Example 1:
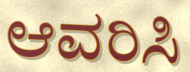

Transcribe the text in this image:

ಆವರಿಸಿ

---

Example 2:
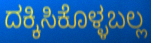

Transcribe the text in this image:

ದಕ್ಕಿಸಿಕೊಳ್ಳಬಲ್ಲ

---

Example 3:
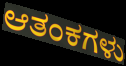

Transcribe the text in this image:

ಆತಂಕಗಳು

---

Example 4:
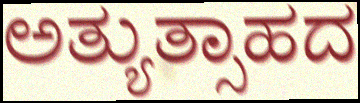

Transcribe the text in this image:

ಅತ್ಯುತ್ಸಾಹದ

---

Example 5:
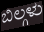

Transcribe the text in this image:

ಬಿಲ್ಗಳು